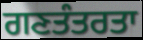
ਗਣਤੰਤਰਤਾ